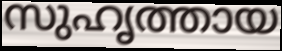
സുഹൃത്തായ